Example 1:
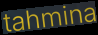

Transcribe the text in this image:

tahmina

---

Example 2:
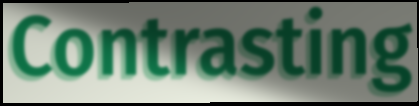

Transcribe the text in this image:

Contrasting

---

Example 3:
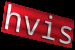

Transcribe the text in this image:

hvis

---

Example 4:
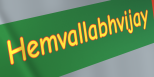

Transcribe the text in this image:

Hemvallabhvijay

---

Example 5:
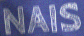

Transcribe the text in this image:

NAIS